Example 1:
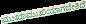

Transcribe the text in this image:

ಮುಖಾಮುಖಿಯಾಗಬೇಕಿದೆ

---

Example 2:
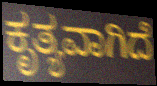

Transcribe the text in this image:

ಕೃತ್ಯವಾಗಿದೆ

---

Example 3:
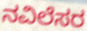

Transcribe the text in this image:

ನವಿಲೆಸರ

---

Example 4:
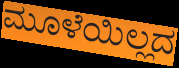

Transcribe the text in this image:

ಮೂಳೆಯಿಲ್ಲದ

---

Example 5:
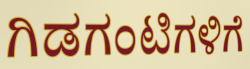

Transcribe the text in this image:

ಗಿಡಗಂಟಿಗಳಿಗೆ